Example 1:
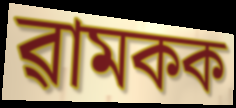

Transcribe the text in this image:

ৱামকক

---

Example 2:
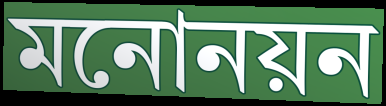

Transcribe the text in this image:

মনোনয়ন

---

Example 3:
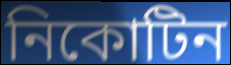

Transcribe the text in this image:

নিকোটিন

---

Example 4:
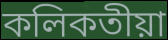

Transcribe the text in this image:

কলিকতীয়া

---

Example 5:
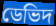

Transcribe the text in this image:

ডেভিদ